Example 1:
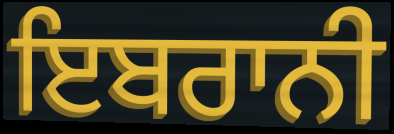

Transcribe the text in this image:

ਇਬਰਾਨੀ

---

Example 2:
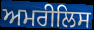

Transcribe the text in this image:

ਅਮਰੀਲਿਸ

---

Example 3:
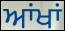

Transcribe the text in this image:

ਆਂਖਾਂ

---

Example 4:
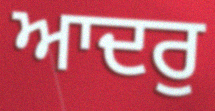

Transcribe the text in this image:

ਆਦਰੁ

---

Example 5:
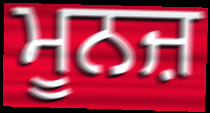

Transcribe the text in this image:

ਮੂਨਜ਼